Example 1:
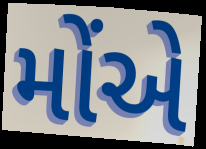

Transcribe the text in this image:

મોંએ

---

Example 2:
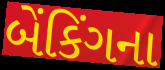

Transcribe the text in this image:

બેંકિંગના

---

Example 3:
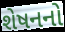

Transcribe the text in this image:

શેષનનો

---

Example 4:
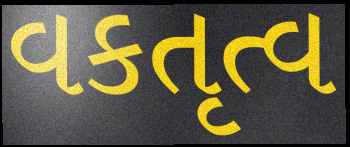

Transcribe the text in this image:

વકતૃત્વ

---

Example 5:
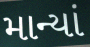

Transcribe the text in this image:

માન્યાં